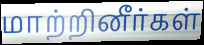
மாற்றினீர்கள்